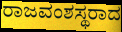
ರಾಜವಂಶಸ್ಥರಾದ